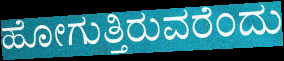
ಹೋಗುತ್ತಿರುವರೆಂದು